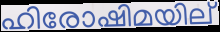
ഹിരോഷിമയില്